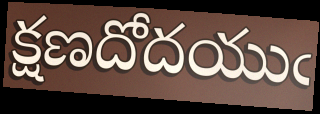
క్షణదోదయుఁ